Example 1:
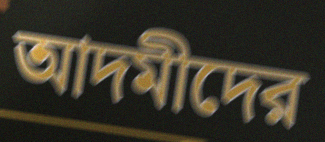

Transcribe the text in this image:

আদমীদের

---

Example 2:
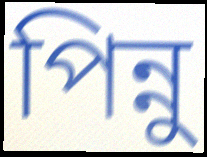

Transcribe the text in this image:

পিন্নু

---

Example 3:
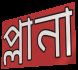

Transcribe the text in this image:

প্লানা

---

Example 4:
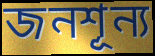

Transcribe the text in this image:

জনশূন্য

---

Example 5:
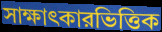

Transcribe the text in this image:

সাক্ষাৎকারভিত্তিক